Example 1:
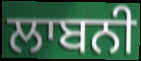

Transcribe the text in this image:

ਲਾਬਨੀ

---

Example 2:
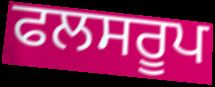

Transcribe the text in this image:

ਫਲਸਰੂਪ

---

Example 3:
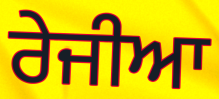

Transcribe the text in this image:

ਰੇਜੀਆ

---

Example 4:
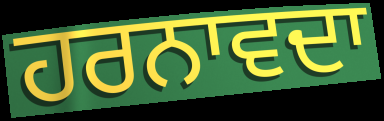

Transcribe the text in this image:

ਹਰਨਾਵਦਾ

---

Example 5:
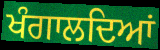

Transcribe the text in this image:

ਖੰਗਾਲਦਿਆਂ